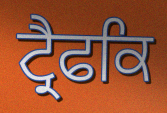
ਟ੍ਰੈਫਕਿ